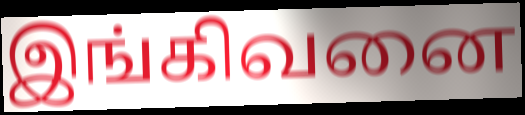
இங்கிவனை